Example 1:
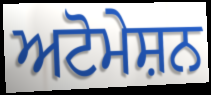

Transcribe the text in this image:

ਅਟੋਮੇਸ਼ਨ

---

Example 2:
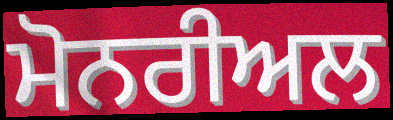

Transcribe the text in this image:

ਮੋਨਰੀਅਲ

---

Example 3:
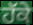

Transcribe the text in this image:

ਹੱਕੇ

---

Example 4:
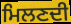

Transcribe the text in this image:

ਮਿਲਣਦੀ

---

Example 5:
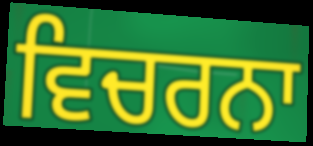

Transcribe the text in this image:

ਵਿਚਰਨਾ